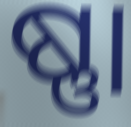
ଷ୍ଣା